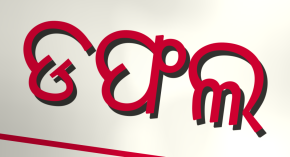
ଡଫଲ